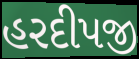
હરદીપજી